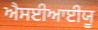
ਐਸਈਆਈਯੂ